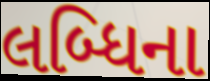
લબ્ધિના